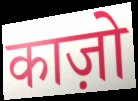
काज़ो